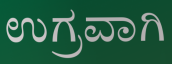
ಉಗ್ರವಾಗಿ